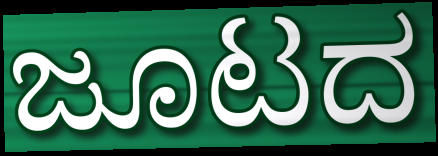
ಜೂಟದ